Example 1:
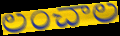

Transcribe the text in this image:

లంచాల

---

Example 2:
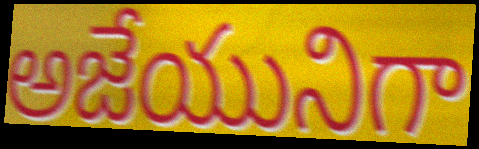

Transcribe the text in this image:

అజేయునిగా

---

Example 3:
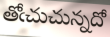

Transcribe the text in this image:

తోఁచుచున్నదో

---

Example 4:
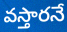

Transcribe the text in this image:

వస్తారనే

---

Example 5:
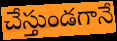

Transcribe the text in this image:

చేస్తుండగానే